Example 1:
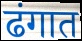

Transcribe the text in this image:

ढंगात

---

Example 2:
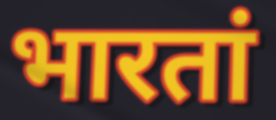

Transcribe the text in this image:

भारतां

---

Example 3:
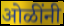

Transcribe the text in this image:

ओळींनी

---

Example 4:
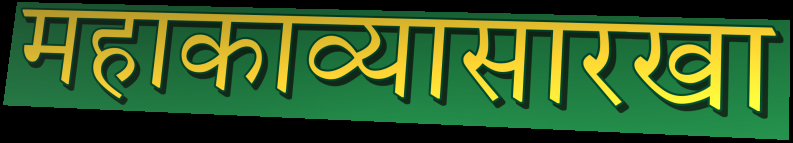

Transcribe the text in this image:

महाकाव्यासारखा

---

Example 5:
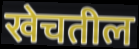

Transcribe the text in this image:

खेचतील